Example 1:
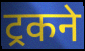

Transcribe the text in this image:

ट्रकने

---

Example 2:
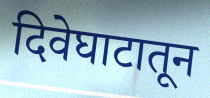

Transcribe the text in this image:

दिवेघाटातून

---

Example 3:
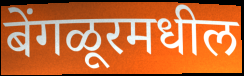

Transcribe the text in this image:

बेंगळूरमधील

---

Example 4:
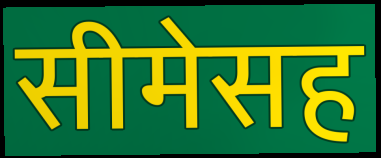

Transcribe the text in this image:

सीमेसह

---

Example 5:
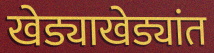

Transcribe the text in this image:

खेड्याखेड्यांत